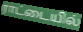
ராட்டையில்